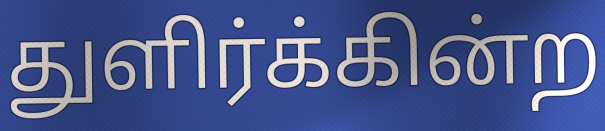
துளிர்க்கின்ற